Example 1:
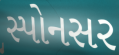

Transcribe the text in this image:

સ્પોનસર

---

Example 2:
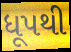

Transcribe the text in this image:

ધૂપથી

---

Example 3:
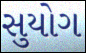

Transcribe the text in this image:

સુયોગ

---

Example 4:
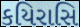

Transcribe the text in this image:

કયિરાસિ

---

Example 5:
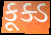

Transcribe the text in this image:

કૂક્ડ